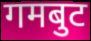
गमबुट